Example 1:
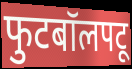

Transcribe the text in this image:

फुटबॉलपटू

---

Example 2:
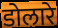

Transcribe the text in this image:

डोलारे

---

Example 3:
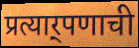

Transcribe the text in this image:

प्रत्यार्पणाची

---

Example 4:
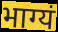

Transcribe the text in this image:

भाग्यं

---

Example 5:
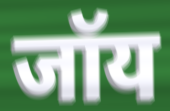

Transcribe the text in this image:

जॉय